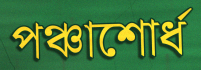
পঞ্চাশোর্ধ